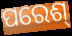
ପରେଶ୍